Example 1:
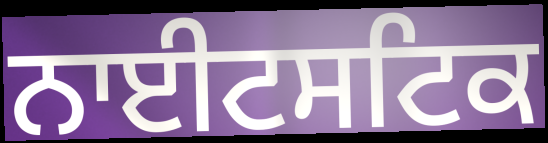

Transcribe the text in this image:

ਨਾਈਟਸਟਿਕ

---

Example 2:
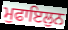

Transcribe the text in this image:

ਮੁਫਾਇਲੁਨ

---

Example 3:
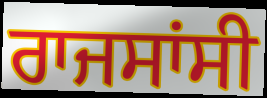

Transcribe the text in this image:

ਰਾਜਸਾਂਸੀ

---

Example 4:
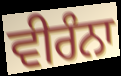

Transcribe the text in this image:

ਵੀਰੰਨਾ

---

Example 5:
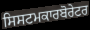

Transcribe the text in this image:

ਸਿਸਟਮਕਾਰਬੋਰੇਟਰ